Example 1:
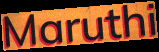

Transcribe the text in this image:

Maruthi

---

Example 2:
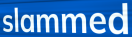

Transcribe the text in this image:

slammed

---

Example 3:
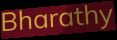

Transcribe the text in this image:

Bharathy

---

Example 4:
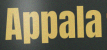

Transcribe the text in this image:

Appala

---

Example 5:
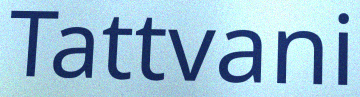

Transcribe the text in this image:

Tattvani